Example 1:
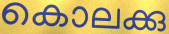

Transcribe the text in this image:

കൊലക്കു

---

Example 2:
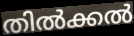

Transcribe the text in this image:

തിൽക്കൽ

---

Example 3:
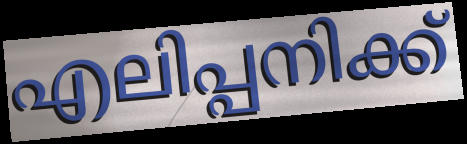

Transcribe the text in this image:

എലിപ്പനിക്ക്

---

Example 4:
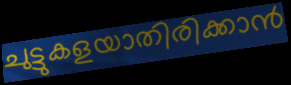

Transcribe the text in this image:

ചുട്ടുകളയാതിരിക്കാൻ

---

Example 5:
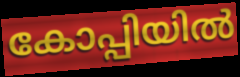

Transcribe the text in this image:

കോപ്പിയിൽ